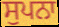
ਸੁਪਨਾ